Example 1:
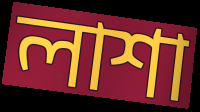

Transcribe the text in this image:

লাশা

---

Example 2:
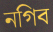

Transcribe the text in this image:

নগিব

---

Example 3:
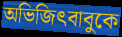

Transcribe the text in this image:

অভিজিৎবাবুকে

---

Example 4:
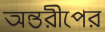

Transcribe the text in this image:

অন্তরীপের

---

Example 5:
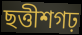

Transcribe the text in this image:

ছত্তীশগঢ়